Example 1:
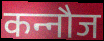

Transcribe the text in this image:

कन्नौज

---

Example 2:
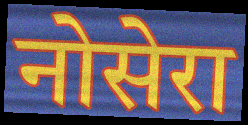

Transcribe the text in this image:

नोसेरा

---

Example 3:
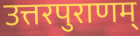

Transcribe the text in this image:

उत्तरपुराणम्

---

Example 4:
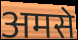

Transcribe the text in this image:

अमसे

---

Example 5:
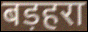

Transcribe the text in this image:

बड़हरा